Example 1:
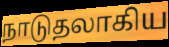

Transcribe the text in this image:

நாடுதலாகிய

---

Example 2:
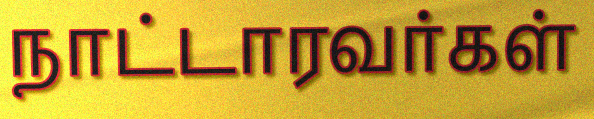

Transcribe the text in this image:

நாட்டாரவர்கள்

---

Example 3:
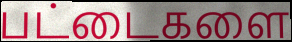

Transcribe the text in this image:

பட்டைகளை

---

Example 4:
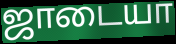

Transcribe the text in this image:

ஜாடையா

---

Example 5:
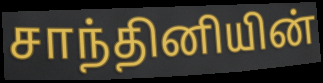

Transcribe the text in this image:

சாந்தினியின்